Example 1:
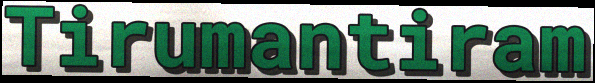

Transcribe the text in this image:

Tirumantiram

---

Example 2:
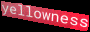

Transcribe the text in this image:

yellowness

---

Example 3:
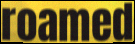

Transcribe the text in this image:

roamed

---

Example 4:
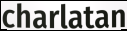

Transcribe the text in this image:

charlatan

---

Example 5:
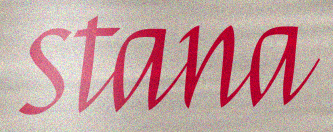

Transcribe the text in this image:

stana